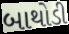
બાથોડી